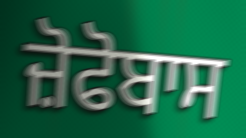
ਜ਼ੋਫੋਬਾਸ